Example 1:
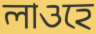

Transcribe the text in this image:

লাওহে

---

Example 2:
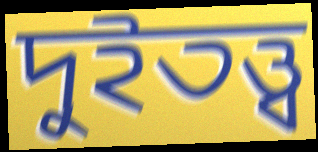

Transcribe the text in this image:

দুইতত্ত্ব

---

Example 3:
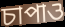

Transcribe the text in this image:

চাপাও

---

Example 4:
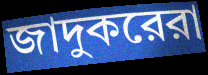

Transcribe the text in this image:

জাদুকরেরা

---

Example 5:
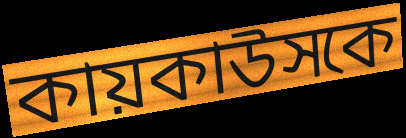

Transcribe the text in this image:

কায়কাউসকে